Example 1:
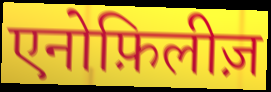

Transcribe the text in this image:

एनोफ़िलीज़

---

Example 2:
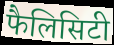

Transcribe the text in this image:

फैलिसिटी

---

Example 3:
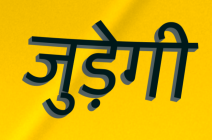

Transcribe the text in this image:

जुड़ेगी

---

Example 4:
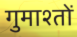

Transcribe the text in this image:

गुमाश्तों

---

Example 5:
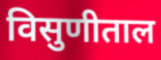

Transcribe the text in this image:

विसुणीताल